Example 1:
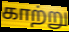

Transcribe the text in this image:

காற்று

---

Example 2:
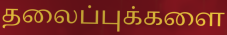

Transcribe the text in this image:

தலைப்புக்களை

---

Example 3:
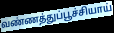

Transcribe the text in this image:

வண்ணத்துப்பூச்சியாய்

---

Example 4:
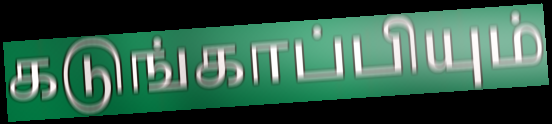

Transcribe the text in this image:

கடுங்காப்பியும்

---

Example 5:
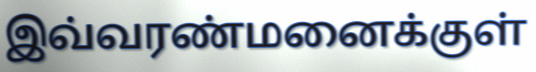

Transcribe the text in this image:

இவ்வரண்மனைக்குள்